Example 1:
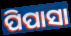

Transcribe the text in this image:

ପିପାସା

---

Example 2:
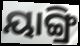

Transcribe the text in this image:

ୟାଙ୍ଗ୍ରି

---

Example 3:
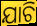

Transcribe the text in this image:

ଯାଚି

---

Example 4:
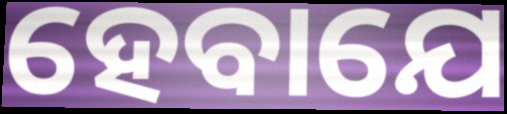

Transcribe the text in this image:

ହେବାଯେ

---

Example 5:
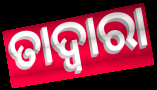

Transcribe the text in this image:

ତାଦ୍ବାରା